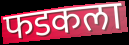
फडकला